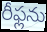
రీఫ్లను